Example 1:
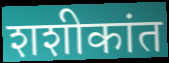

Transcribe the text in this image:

शशीकांत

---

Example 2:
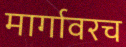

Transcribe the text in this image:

मार्गावरच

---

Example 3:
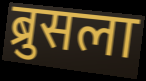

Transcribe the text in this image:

ब्रुसला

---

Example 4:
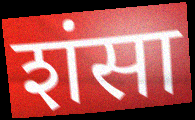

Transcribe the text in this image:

शंसा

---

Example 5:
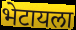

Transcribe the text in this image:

भेटायला